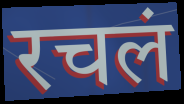
रचलं